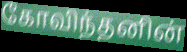
கோவிந்தனின்